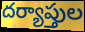
దర్యాప్తుల